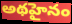
అథహైనం